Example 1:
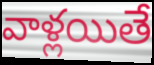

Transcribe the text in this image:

వాళ్లయితే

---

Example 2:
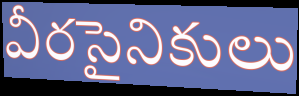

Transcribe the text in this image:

వీరసైనికులు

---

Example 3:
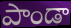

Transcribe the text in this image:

పాండా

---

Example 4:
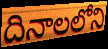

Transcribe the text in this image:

దినాలలోని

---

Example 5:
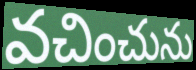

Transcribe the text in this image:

వచించును